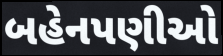
બહેનપણીઓ